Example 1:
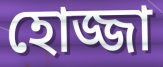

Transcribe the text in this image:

হোজ্জা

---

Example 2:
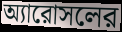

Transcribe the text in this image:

অ্যারোসলের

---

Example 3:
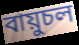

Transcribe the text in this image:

বায়ুচল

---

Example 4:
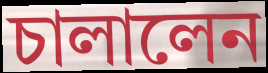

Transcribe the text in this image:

চালালেন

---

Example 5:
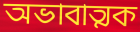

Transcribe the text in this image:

অভাবাত্মক